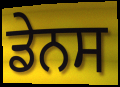
ਡੇਨਸ